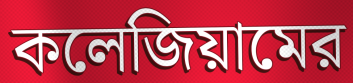
কলেজিয়ামের